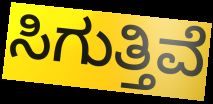
ಸಿಗುತ್ತಿವೆ